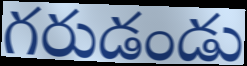
గరుడండు